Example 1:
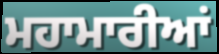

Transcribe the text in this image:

ਮਹਾਮਾਰੀਆਂ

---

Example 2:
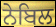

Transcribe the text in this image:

ਨੇਬਿਲ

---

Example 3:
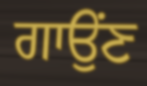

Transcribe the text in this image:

ਗਾਉਂਣ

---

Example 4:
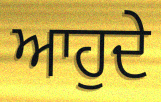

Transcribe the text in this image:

ਆਹੁਦੇ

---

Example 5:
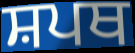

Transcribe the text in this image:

ਸ਼ਪਥ